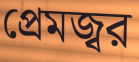
প্রেমজ্বর